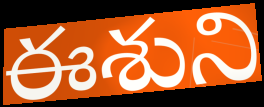
ఈశుని